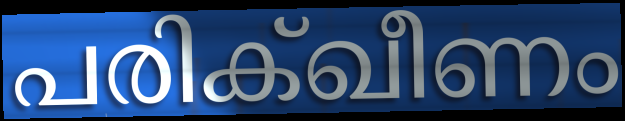
പരിക്ഖീണം